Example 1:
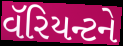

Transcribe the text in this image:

વૅરિયન્ટને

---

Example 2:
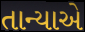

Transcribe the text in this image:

તાન્યાએ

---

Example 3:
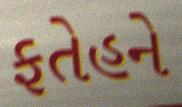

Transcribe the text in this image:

ફતેહને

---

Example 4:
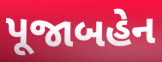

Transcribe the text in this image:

પૂજાબહેન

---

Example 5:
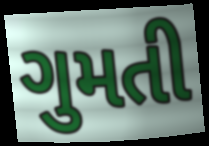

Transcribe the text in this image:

ગુમતી